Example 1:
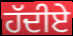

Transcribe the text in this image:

ਹੱਦੀਏ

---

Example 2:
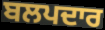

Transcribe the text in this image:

ਬਲਪਦਾਰ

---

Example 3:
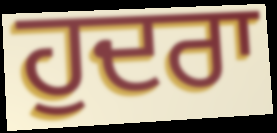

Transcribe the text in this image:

ਹੁਦਰਾ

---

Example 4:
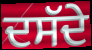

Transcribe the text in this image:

ਦਸੱਦੇ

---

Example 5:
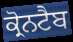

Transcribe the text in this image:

ਕ੍ਰੋਨਟੈਬ